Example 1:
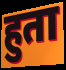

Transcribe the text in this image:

हुता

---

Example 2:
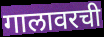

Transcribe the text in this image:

गालावरची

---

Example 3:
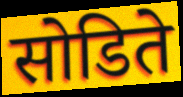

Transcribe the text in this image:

सोडिते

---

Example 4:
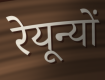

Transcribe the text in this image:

रेयून्यों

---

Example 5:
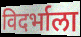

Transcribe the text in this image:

विदर्भाला